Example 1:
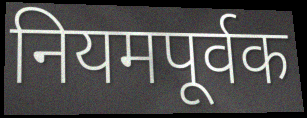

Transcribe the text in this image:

नियमपूर्वक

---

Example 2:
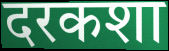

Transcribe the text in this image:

दरकशा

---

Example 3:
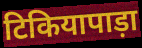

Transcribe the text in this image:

टिकियापाड़ा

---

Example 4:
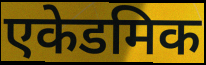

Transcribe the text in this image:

एकेडमिक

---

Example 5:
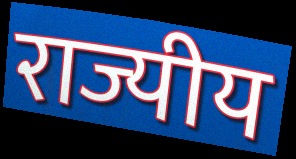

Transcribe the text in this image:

राज्‍यीय